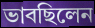
ভাবছিলেন